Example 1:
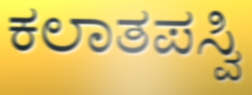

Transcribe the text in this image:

ಕಲಾತಪಸ್ವಿ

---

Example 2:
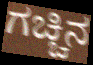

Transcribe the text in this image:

ಗಚ್ಚಿನ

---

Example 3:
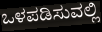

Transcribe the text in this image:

ಒಳಪಡಿಸುವಲ್ಲಿ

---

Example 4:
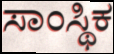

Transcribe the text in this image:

ಸಾಂಸ್ಥಿಕ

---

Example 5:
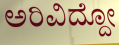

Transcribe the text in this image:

ಅರಿವಿದ್ದೋ